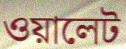
ওয়ালেট